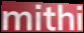
mithi